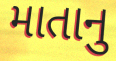
માતાનુ